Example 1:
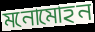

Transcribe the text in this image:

মনোমোহন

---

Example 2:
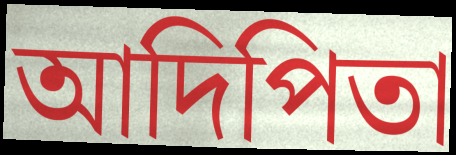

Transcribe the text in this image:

আদিপিতা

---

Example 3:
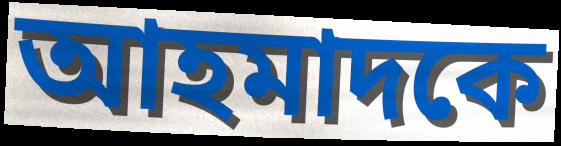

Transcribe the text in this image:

আহমাদকে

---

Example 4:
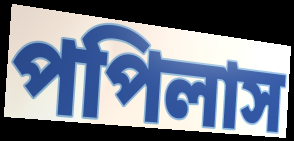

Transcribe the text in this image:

পপিলাস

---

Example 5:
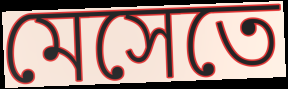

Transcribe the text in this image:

মেসেতে